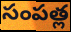
సంపత్ల